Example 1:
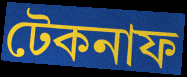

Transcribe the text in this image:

টেকনাফ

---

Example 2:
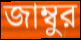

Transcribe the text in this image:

জাম্বুর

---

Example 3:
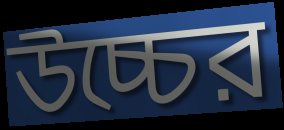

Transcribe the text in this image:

উচ্চের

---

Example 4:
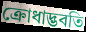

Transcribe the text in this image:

ক্রোধাদ্ভবতি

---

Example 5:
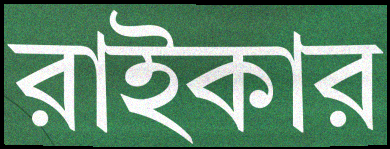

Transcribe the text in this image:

রাইকার